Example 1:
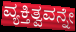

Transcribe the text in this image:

ವ್ಯಕ್ತಿತ್ವವನ್ನೇ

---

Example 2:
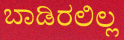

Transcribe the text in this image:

ಬಾಡಿರಲಿಲ್ಲ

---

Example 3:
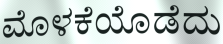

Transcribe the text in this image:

ಮೊಳಕೆಯೊಡೆದು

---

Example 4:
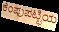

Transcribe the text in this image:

ಕೆಂಪುಪಟ್ಟಿಯ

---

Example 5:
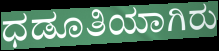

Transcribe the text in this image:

ಧಡೂತಿಯಾಗಿರು